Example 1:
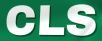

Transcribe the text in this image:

CLS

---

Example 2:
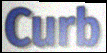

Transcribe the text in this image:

Curb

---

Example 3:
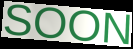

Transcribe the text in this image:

SOON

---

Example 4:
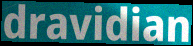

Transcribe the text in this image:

dravidian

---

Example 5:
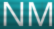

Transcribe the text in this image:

NM